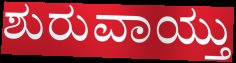
ಶುರುವಾಯ್ತು